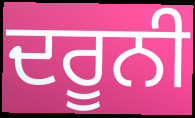
ਦਰੂਨੀ